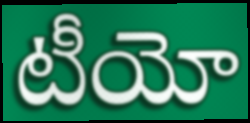
టీయో